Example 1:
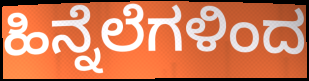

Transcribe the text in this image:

ಹಿನ್ನೆಲೆಗಳಿಂದ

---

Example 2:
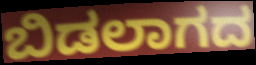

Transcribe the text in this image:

ಬಿಡಲಾಗದ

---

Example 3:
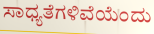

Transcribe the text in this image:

ಸಾಧ್ಯತೆಗಳಿವೆಯೆಂದು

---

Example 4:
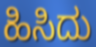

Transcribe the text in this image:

ಹಿಸಿದು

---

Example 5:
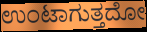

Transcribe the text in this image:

ಉಂಟಾಗುತ್ತದೋ